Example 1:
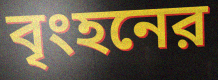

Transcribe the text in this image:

বৃংহনের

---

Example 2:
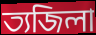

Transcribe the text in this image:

ত্যজিলা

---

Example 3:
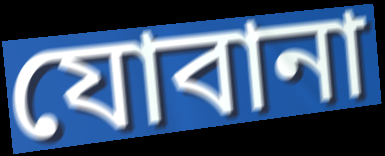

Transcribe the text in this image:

যোবানা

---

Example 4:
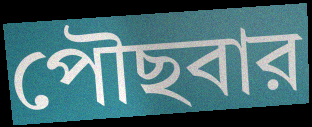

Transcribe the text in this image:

পৌছবার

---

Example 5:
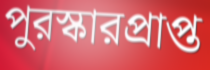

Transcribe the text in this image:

পুরস্কারপ্রাপ্ত